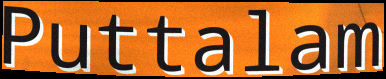
Puttalam